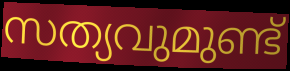
സത്യവുമുണ്ട്